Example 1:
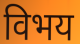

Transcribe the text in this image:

विभय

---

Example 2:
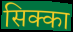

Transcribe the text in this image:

सिक्‍का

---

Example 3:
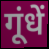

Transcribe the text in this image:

गूंधें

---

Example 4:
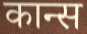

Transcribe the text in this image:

कान्स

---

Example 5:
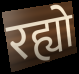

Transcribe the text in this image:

रह्यो